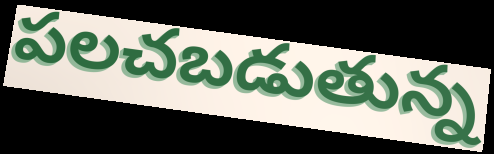
పలచబడుతున్న